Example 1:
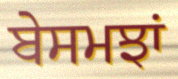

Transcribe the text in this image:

ਬੇਸਮਝਾਂ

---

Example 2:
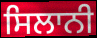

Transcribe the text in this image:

ਸਿਲਾਨੀ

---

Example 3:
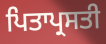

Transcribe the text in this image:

ਪਿਤਾਪ੍ਰਸਤੀ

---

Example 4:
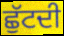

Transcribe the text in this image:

ਛੁੱਟਦੀ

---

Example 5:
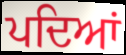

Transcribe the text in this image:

ਪਦਿਆਂ